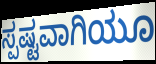
ಸ್ಪಷ್ಟವಾಗಿಯೂ